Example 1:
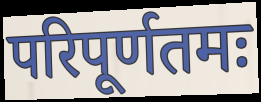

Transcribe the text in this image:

परिपूर्णतमः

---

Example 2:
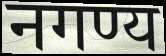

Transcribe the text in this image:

नगण्य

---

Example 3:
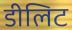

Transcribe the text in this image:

डीलिट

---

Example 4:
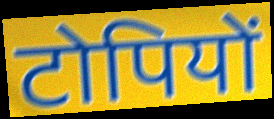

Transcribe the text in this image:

टोपियों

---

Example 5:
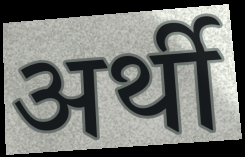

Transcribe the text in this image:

अर्थी